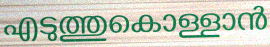
എടുത്തുകൊള്ളാൻ